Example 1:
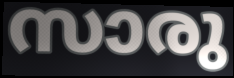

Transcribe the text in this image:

സാരു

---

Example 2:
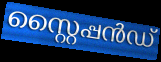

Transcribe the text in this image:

സ്റ്റൈപ്പൻഡ്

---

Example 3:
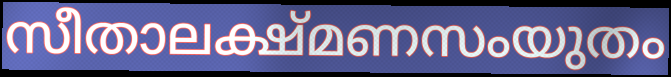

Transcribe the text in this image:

സീതാലക്ഷ്മണസംയുതം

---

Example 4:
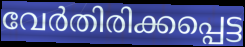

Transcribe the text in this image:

വേർതിരിക്കപ്പെട്ട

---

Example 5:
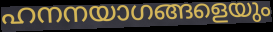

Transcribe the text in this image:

ഹനനയാഗങ്ങളെയും